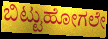
ಬಿಟ್ಟುಹೋಗಲೇ